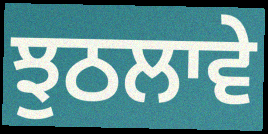
ਝੁਠਲਾਵੇ